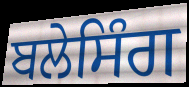
ਬਲੇਸਿੰਗ